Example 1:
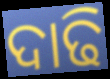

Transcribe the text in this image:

ଦାଢି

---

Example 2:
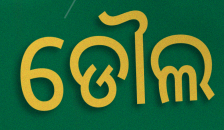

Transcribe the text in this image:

ଡୌଲ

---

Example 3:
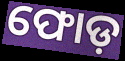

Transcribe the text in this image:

ଫୋଡ଼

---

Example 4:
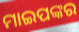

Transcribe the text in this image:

ମାଇପଙ୍କର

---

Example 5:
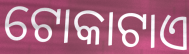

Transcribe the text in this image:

ଟୋକାଟାଏ